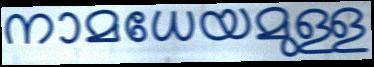
നാമധേയമുള്ള